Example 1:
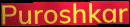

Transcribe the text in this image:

Puroshkar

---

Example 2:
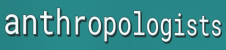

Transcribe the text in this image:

anthropologists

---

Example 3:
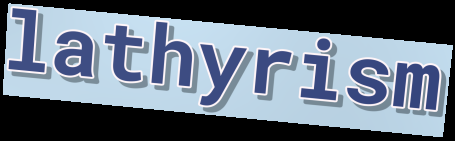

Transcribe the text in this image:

lathyrism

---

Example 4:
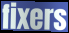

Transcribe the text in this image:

fixers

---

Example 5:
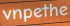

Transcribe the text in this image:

vnpethe